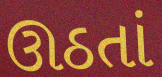
ઊઠતાં